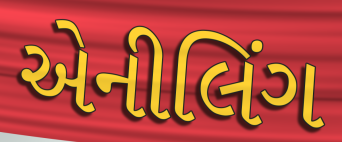
એનીલિંગ